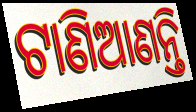
ଟାଣିଆଣନ୍ତି